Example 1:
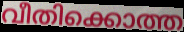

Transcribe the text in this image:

വീതിക്കൊത്ത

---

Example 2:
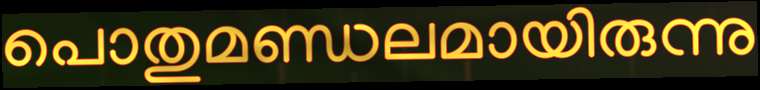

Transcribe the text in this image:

പൊതുമണ്ഡലമായിരുന്നു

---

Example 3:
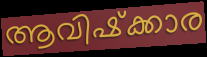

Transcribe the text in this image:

ആവിഷ്‌ക്കാര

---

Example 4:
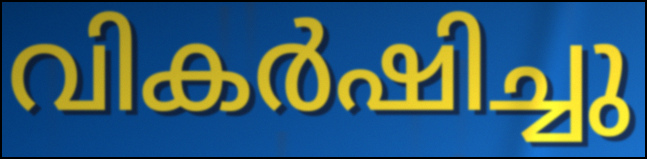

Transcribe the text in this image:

വികർഷിച്ചു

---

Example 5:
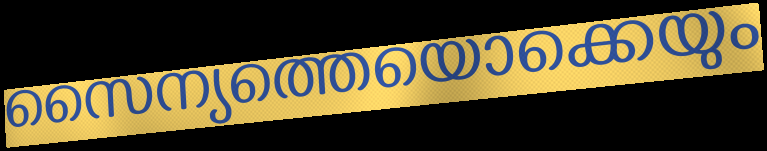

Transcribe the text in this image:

സൈന്യത്തെയൊക്കെയും